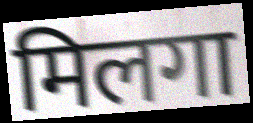
मिलगा